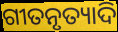
ଗୀତନୃତ୍ୟାଦି